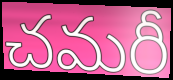
చమరీ